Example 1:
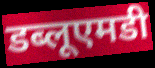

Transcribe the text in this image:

डब्लूएमडी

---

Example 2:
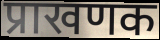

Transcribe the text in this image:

प्राखणक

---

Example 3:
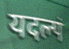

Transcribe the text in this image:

यदल्पं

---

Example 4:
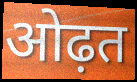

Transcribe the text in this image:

ओढ़त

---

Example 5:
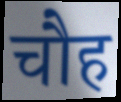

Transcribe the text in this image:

चौह